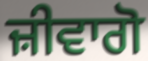
ਜ਼ੀਵਾਗੋ